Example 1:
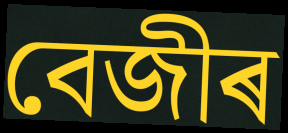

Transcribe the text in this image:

বেজীৰ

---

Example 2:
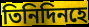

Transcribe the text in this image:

তিনিদিনহে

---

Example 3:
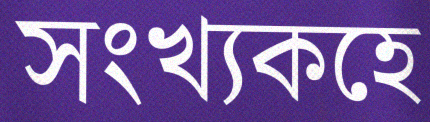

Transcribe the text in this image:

সংখ্যকহে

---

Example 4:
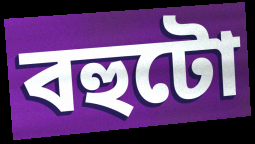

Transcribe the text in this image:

বহুটো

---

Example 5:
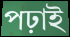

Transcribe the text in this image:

পঢ়াই